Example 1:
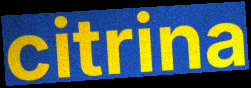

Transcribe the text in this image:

citrina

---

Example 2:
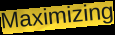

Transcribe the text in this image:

Maximizing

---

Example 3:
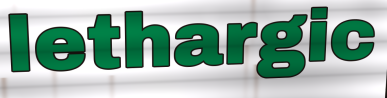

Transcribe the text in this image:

lethargic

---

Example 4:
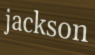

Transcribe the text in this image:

jackson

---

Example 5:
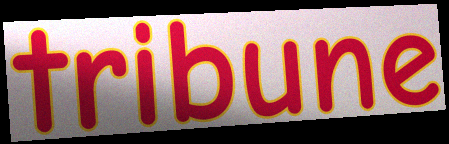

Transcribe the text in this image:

tribune